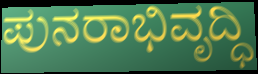
ಪುನರಾಭಿವೃದ್ಧಿ